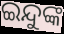
ଇନ୍ଦୁଙ୍କ